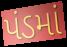
પંડમાં